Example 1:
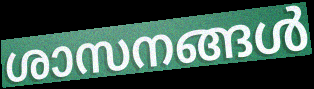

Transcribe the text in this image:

ശാസനങ്ങൾ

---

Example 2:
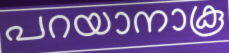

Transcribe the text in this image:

പറയാനാകൂ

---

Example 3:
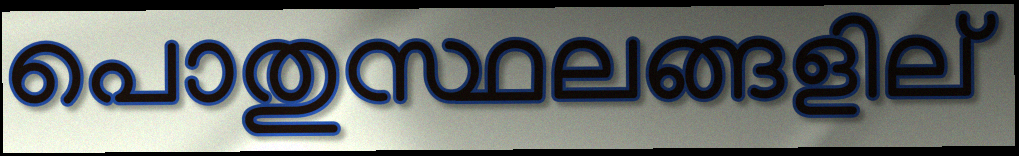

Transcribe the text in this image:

പൊതുസ്ഥലങ്ങളില്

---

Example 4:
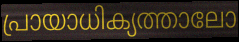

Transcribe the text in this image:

പ്രായാധിക്യത്താലോ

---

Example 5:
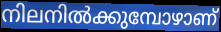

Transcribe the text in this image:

നിലനിൽക്കുമ്പോഴാണ്